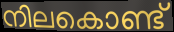
നിലകൊണ്ട്